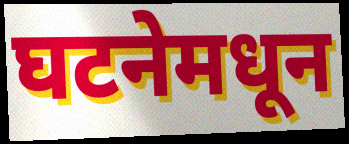
घटनेमधून